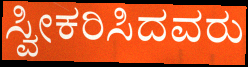
ಸ್ವೀಕರಿಸಿದವರು